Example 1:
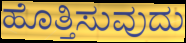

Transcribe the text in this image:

ಹೊತ್ತಿಸುವುದು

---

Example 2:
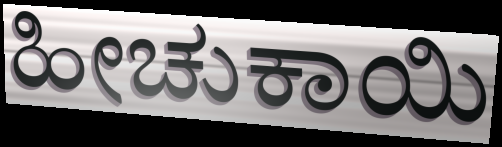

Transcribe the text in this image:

ಹೀಚುಕಾಯಿ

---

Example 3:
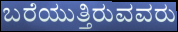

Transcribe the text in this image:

ಬರೆಯುತ್ತಿರುವವರು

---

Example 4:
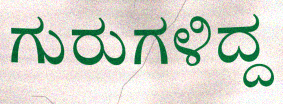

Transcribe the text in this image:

ಗುರುಗಳಿದ್ದ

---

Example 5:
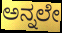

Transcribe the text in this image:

ಅನ್ನಲೇ